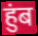
हुंब